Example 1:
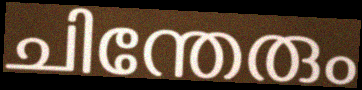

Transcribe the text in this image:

ചിന്തേരും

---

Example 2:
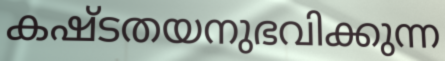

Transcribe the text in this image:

കഷ്ടതയനുഭവിക്കുന്ന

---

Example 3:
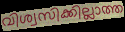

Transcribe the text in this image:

വിശ്വസിക്കില്ലാത്ത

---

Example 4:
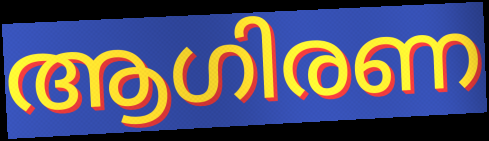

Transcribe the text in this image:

ആഗിരണ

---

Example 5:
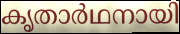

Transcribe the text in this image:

കൃതാർഥനായി